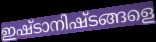
ഇഷ്ടാനിഷ്ടങ്ങളെ